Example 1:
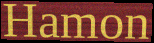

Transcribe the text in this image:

Hamon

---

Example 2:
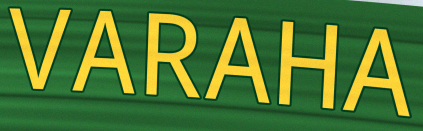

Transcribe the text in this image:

VARAHA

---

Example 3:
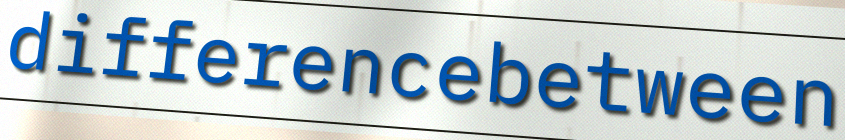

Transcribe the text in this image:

differencebetween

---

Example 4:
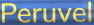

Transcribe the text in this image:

Peruvel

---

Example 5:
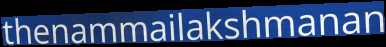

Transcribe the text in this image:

thenammailakshmanan